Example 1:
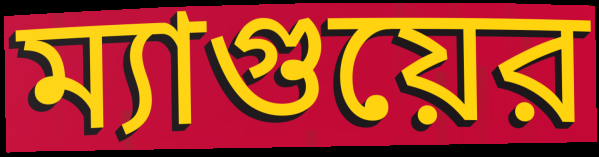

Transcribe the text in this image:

ম্যাগুয়ের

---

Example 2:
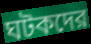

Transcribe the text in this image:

ঘটকদের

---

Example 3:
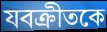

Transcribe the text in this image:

যবক্রীতকে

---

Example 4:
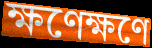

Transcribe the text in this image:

ক্ষণেক্ষণে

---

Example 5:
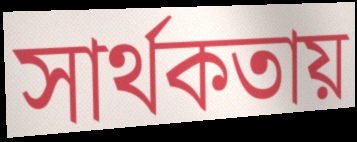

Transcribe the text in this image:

সার্থকতায়